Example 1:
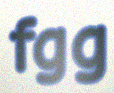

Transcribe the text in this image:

fgg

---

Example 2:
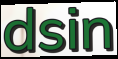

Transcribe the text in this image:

dsin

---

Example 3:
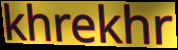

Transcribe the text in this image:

khrekhr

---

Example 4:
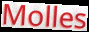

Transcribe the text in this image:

Molles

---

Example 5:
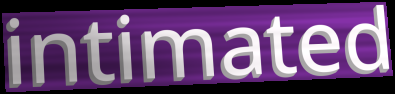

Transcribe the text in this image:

intimated